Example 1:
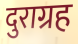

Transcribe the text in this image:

दुराग्रह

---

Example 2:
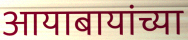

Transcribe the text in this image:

आयाबायांच्या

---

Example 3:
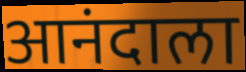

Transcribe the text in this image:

आनंदाला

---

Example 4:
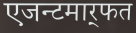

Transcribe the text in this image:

एजन्टमार्फत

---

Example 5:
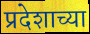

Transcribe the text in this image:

प्रदेशाच्या